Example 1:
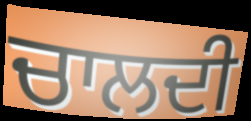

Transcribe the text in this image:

ਚਾਲਦੀ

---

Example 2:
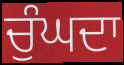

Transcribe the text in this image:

ਚੁੰਘਦਾ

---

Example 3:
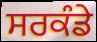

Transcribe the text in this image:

ਸਰਕੰਡੇ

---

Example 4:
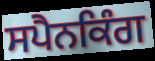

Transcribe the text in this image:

ਸਪੈਨਕਿੰਗ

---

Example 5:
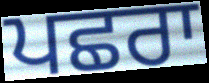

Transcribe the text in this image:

ਪਛਰਾ